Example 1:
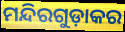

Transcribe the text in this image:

ମନ୍ଦିରଗୁଡ଼ାକର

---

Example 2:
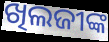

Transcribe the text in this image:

ଖିଲଜୀଙ୍କ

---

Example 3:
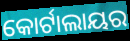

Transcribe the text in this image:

କୋର୍ଟାଲାୟର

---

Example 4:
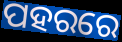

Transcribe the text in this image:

ପହରରେ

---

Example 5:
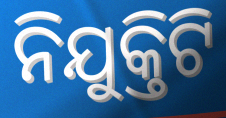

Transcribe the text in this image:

ନିଯୁକ୍ତିଟି